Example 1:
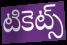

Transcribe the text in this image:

టికెట్స్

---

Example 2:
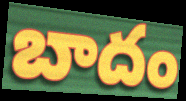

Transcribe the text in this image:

బాదం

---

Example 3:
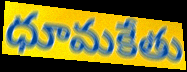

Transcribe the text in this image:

ధూమకేతు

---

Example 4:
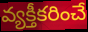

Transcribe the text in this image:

వ్యక్తీకరించే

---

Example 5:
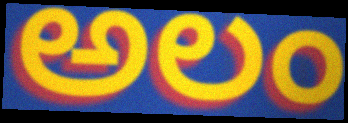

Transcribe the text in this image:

అలం